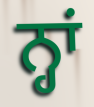
ਨ੍ਹਾਂ